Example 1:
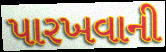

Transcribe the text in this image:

પારખવાની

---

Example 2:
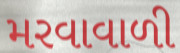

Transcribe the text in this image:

મરવાવાળી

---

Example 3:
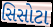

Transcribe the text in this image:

સિસોટા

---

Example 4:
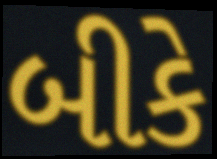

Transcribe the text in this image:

બીકે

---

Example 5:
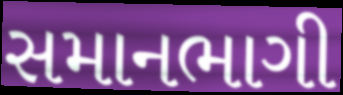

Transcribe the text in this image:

સમાનભાગી